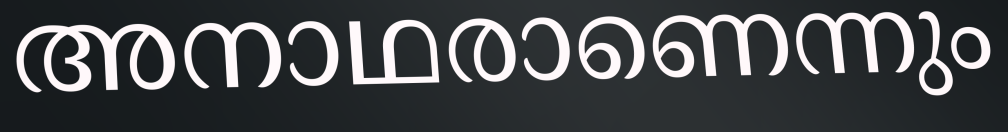
അനാഥരാണെന്നും